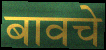
बावचे